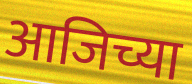
आजिच्या